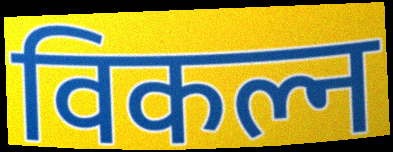
विकल्न